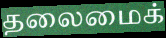
தலைமைக்